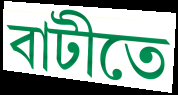
বাটীতে